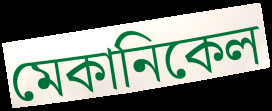
মেকানিকেল